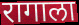
रागाला